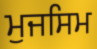
ਮੁਜਸਿਮ